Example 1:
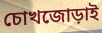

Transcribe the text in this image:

চোখজোড়াই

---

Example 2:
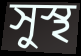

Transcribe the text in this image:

সুস্থ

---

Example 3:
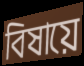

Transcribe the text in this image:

বিষায়ে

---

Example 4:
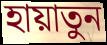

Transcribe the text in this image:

হায়াতুন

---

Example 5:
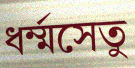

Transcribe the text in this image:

ধর্ম্মসেতু